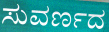
ಸುವರ್ಣದ